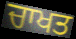
ਚਾਖਤ